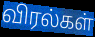
விரல்கள்